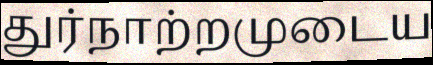
துர்நாற்றமுடைய